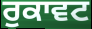
ਰੁਕਾਵਟ